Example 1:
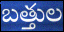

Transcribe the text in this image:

బత్తుల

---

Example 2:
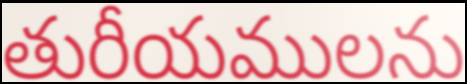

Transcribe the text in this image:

తురీయములను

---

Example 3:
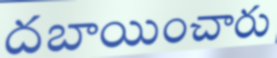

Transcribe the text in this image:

దబాయించారు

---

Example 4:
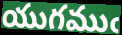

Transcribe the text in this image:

యుగముఁ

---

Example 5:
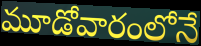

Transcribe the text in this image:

మూడోవారంలోనే